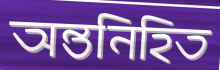
অন্তনিহিত